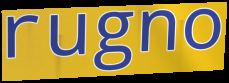
rugno